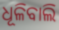
ଧୂଳିବାଲି